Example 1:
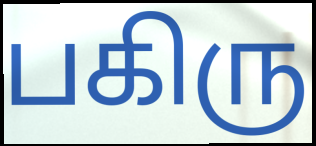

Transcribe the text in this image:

பகிரு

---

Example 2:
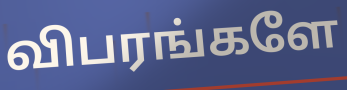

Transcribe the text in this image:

விபரங்களே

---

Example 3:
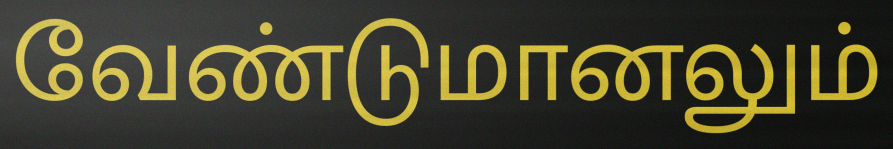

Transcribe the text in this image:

வேண்டுமானலும்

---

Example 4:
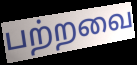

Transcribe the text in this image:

பற்றவை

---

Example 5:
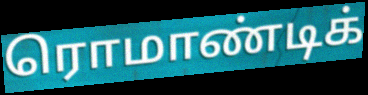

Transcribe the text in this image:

ரொமாண்டிக்